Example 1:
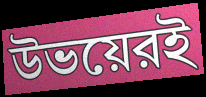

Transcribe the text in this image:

উভয়েরই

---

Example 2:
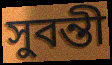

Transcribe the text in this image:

সুবন্তী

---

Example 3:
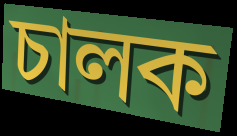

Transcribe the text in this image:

চালক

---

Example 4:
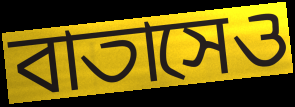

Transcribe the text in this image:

বাতাসেও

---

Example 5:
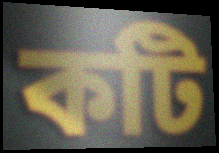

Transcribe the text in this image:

কটি